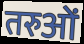
तरुओं